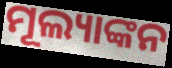
ମୂଲ୍ୟାଙ୍କନ